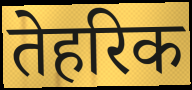
तेहरिक